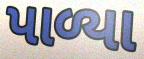
પાળ્યા